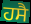
ਹਸੈ